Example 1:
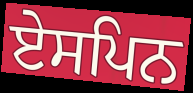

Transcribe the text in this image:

ਏਸਪਿਨ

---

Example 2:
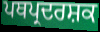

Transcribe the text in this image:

ਪਥਪ੍ਰਦਰਸ਼ਕ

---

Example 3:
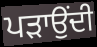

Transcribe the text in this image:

ਪੜਾਉਂਦੀ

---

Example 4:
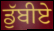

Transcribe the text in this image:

ਡੁੱਬੀਏ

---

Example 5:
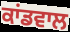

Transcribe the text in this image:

ਕਾਂਡਵਾਲ